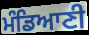
ਮੰਡਿਆਣੀ